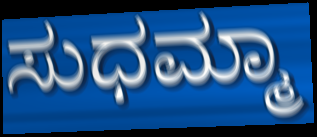
ಸುಧಮ್ಮಾ